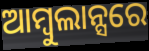
ଆମ୍ବୁଲାନ୍ସରେ